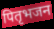
पितृभजन